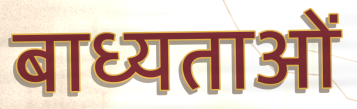
बाध्यताओं